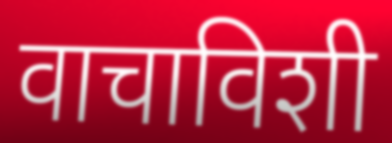
वाचाविशी